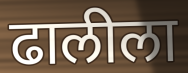
ढालीला